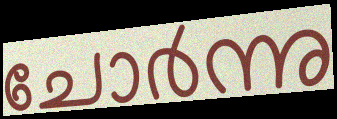
ചോർന്നു